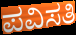
ಪವಿಸತಿ